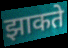
झाकते